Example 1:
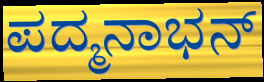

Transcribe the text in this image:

ಪದ್ಮನಾಭನ್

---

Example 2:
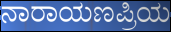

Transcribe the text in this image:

ನಾರಾಯಣಪ್ರಿಯ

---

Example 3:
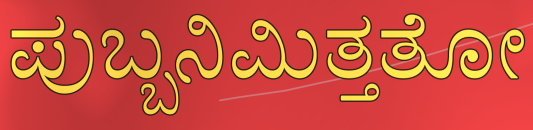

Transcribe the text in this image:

ಪುಬ್ಬನಿಮಿತ್ತತೋ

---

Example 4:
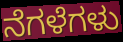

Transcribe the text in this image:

ನೆಗಳೆಗಳು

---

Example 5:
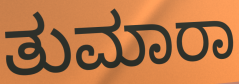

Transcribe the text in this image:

ತುಮಾರಾ